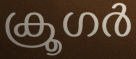
ക്രൂഗർ